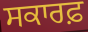
ਸਕਾਰਫ਼